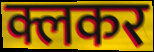
क्लकर